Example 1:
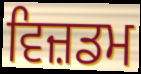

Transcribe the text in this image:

ਵਿਜ਼ਡਮ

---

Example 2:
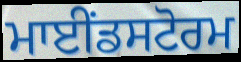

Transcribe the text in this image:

ਮਾਈਂਡਸਟੋਰਮ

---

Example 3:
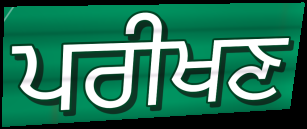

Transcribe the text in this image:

ਪਰੀਖਣ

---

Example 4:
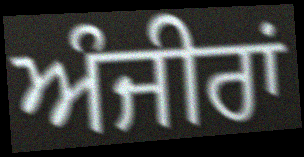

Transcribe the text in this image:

ਅੰਜੀਰਾਂ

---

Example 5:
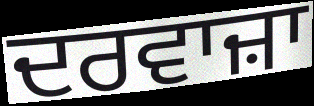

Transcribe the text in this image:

ਦਰਵਾਜ਼ਾ